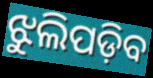
ଝୁଲିପଡ଼ିବ